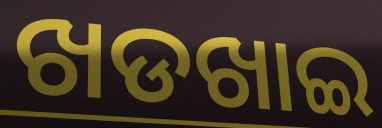
ଖଡଖାଇ